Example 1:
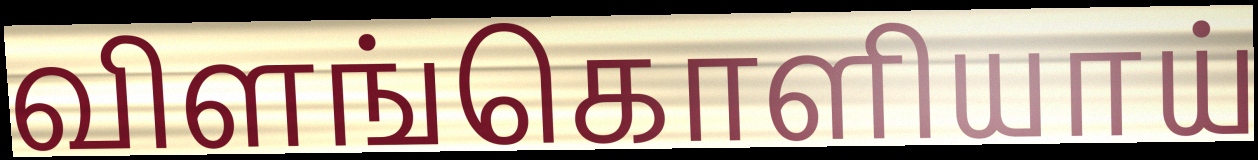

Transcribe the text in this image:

விளங்கொளியாய்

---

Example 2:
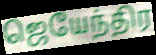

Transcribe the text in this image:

ஜெயேந்திர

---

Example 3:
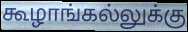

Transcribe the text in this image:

கூழாங்கல்லுக்கு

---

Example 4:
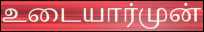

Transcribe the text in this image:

உடையார்முன்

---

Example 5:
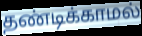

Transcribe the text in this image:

தண்டிக்காமல்